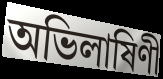
অভিলাষিণী